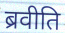
ब्रवीति